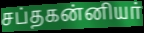
சப்தகன்னியர்